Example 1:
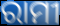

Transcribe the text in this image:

ରାମୀ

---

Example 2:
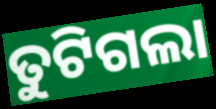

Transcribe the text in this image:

ତୁଟିଗଲା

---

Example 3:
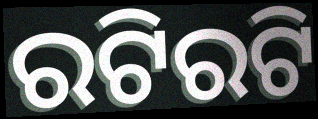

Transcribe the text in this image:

ରଟିରଟି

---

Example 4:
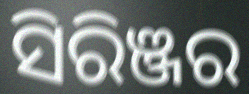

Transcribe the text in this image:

ସିରିଞ୍ଜର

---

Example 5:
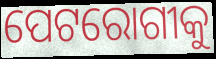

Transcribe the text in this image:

ପେଟରୋଗୀକୁ